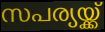
സപര്യയ്ക്ക്